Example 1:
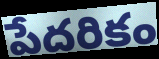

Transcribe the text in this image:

పేదరికం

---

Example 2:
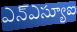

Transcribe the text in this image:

ఎన్ఎస్యూఐ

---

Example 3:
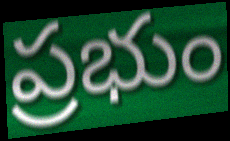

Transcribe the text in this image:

ప్రభుం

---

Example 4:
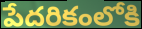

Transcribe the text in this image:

పేదరికంలోకి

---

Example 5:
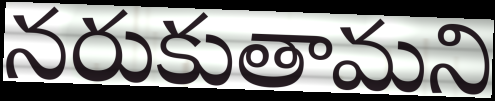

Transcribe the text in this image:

నరుకుతామని